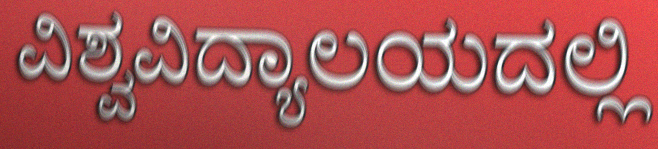
ವಿಶ್ವವಿದ್ಯಾಲಯದಲ್ಲಿ